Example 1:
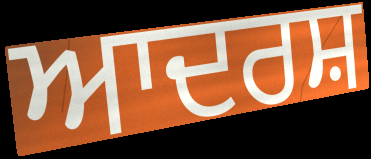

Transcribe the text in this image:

ਆਦਰਸ਼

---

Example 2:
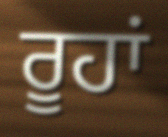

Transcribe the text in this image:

ਰੂਹਾਂ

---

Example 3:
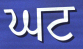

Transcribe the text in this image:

ਘਟ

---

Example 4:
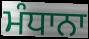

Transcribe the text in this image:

ਮੰਧਾਨਾ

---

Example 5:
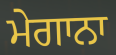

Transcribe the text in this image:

ਮੇਗਾਨਾ